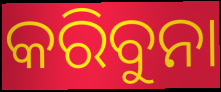
କରିବୁନା